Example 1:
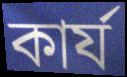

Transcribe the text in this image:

কাৰ্য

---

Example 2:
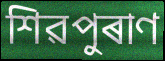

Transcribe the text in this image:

শিৱপুৰাণ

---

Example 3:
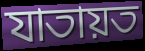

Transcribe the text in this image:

যাতায়ত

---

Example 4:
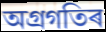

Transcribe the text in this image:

অগ্ৰগতিৰ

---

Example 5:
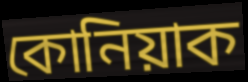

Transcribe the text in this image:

কোনিয়াক